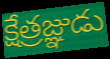
క్షేత్రజ్ఞుడు